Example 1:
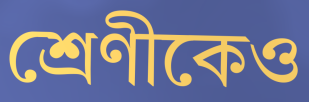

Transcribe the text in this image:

শ্রেণীকেও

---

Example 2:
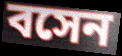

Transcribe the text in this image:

বসেন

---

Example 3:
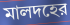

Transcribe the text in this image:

মালদহের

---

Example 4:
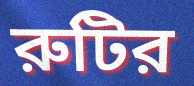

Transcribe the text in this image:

রুটির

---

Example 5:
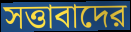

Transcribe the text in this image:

সত্তাবাদের